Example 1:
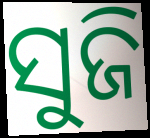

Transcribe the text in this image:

ସୁଜି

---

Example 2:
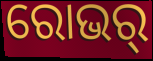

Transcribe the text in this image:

ରୋଭର୍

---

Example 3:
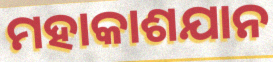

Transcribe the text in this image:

ମହାକାଶଯାନ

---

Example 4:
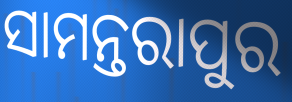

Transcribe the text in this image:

ସାମନ୍ତରାପୁର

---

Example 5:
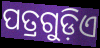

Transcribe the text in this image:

ପତ୍ରଗୁଡ଼ିଏ